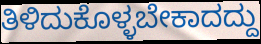
ತಿಳಿದುಕೊಳ್ಳಬೇಕಾದದ್ದು